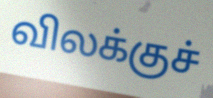
விலக்குச்